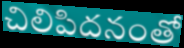
చిలిపిదనంతో